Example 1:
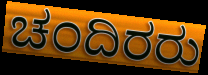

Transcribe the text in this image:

ಚಂದಿರರು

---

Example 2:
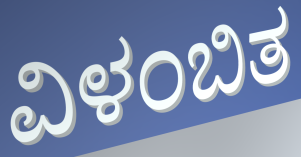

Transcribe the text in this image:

ವಿಳಂಬಿತ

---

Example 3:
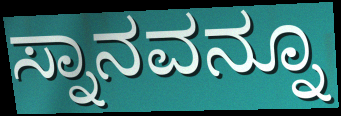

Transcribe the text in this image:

ಸ್ನಾನವನ್ನೂ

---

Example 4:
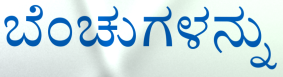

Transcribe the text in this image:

ಬೆಂಚುಗಳನ್ನು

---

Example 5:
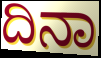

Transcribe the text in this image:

ದಿನಾ